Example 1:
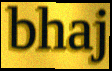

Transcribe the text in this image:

bhaj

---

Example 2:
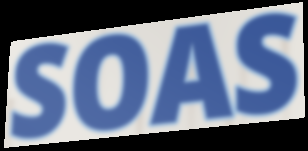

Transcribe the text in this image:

SOAS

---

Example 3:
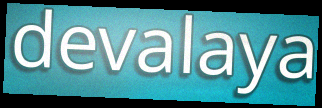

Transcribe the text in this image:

devalaya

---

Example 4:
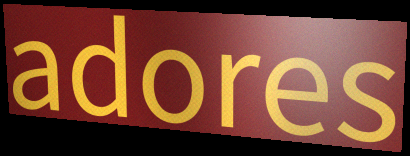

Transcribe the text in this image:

adores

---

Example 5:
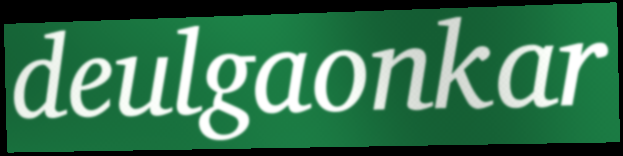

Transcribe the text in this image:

deulgaonkar